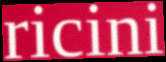
ricini